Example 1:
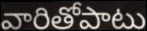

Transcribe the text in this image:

వారితోపాటు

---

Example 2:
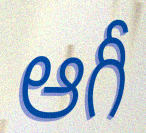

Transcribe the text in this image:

ఆగీ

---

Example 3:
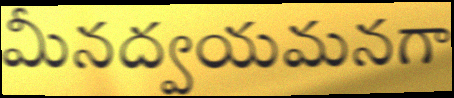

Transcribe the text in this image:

మీనద్వయమనగా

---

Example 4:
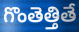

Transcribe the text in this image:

గొంతెత్తితే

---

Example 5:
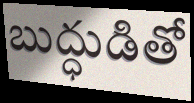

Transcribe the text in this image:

బుద్ధుడితో